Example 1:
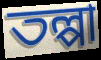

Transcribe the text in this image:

তল্পা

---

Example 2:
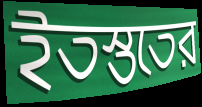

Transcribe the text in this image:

ইতস্ততের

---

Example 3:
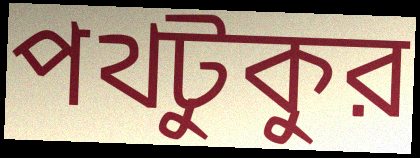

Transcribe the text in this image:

পথটুকুর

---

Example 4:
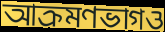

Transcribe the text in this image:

আক্রমণভাগও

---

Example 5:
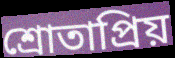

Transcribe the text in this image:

শ্রোতাপ্রিয়